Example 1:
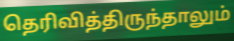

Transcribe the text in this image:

தெரிவித்திருந்தாலும்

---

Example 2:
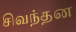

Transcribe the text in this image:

சிவந்தன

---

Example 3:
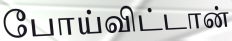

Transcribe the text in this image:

போய்விட்டான்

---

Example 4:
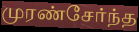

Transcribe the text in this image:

முரண்சேர்ந்த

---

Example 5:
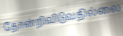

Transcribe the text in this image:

தோன்றிவிடுவதில்லை